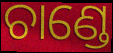
ଚାଣ୍ଡେ